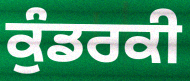
ਕੁੰਡਰਕੀ